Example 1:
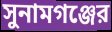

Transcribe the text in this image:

সুনামগঞ্জের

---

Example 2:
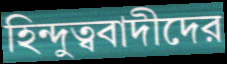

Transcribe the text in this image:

হিন্দুত্ববাদীদের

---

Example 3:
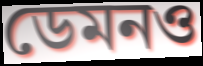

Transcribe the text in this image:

ডেমনও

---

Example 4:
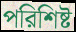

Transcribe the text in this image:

পরিশিষ্ট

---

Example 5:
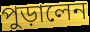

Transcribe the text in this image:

পুড়ালেন